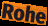
Rohe